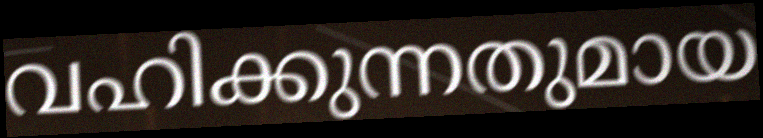
വഹിക്കുന്നതുമായ